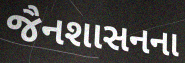
જૈનશાસનના